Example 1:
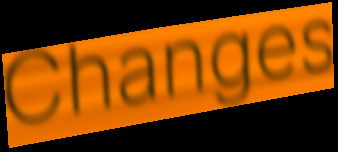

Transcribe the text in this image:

Changes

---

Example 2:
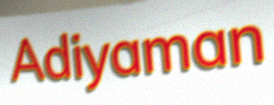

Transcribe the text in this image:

Adiyaman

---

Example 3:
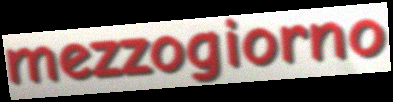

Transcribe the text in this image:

mezzogiorno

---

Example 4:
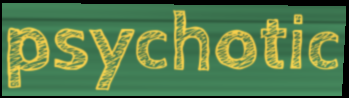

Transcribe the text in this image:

psychotic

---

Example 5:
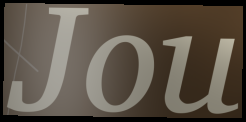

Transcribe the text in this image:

Jou